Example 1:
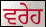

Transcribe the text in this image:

ਵਰੇਹ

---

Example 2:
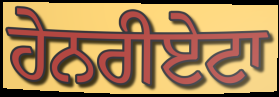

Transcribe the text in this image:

ਹੇਨਰੀਏਟਾ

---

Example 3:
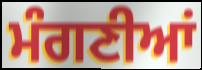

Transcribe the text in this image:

ਮੰਗਣੀਆਂ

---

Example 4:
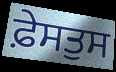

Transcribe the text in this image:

ਫ਼ੇਸਤੁਸ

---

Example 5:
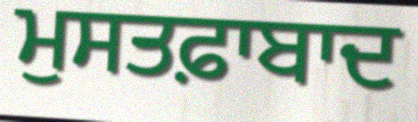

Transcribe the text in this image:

ਮੁਸਤਫ਼ਾਬਾਦ